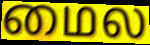
மைல